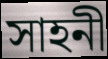
সাহনী